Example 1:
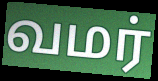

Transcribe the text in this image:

வமர்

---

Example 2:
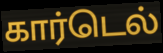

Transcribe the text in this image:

கார்டெல்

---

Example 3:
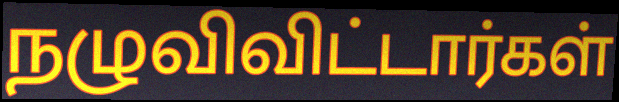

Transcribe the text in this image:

நழுவிவிட்டார்கள்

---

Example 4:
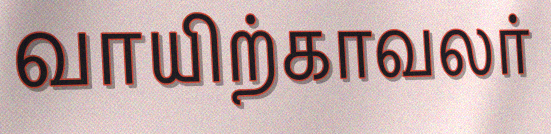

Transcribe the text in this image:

வாயிற்காவலர்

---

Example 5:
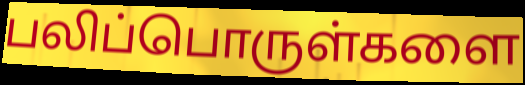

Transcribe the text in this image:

பலிப்பொருள்களை